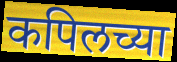
कपिलच्या